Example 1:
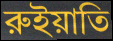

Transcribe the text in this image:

রুইয়াতি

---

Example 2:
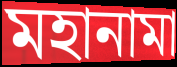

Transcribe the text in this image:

মহানামা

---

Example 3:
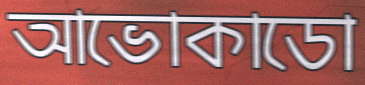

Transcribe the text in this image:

আভোকাডো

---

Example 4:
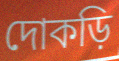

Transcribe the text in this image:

দোকড়ি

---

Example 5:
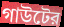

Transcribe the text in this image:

গাউটের